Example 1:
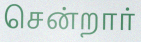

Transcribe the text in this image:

சென்றார்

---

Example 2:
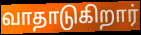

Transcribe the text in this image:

வாதாடுகிறார்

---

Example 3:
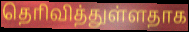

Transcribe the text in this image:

தெரிவித்துள்ளதாக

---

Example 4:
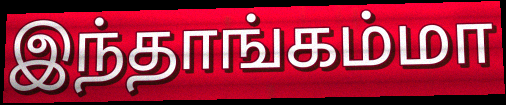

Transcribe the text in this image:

இந்தாங்கம்மா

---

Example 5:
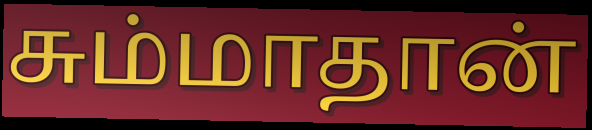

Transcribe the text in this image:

சும்மாதான்